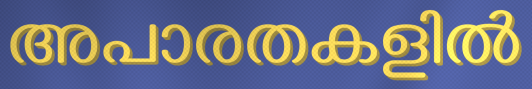
അപാരതകളിൽ